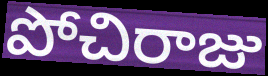
పోచిరాజు